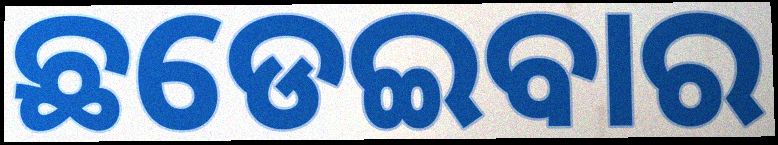
ଛଡେଇବାର